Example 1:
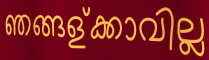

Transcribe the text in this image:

ഞങ്ങള്ക്കാവില്ല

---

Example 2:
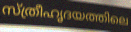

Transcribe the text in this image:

സ്ത്രീഹൃദയത്തിലെ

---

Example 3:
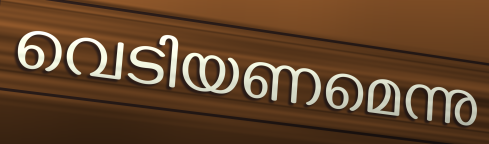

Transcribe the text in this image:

വെടിയണമെന്നു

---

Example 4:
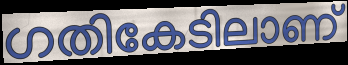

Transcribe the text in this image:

ഗതികേടിലാണ്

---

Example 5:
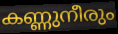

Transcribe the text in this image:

കണ്ണുനീരും